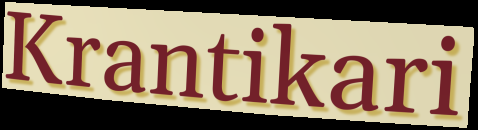
Krantikari